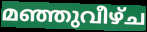
മഞ്ഞുവീഴ്ച